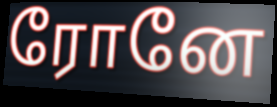
ரோனே